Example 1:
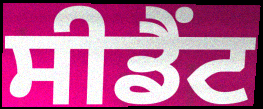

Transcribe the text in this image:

ਸੀਡੈਂਟ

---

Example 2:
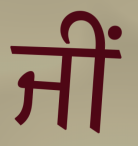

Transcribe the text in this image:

ਜੀਂ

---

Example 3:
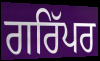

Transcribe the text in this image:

ਗਰਿੱਪਰ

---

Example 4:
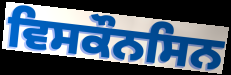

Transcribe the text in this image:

ਵਿਸਕੌਨਸਿਨ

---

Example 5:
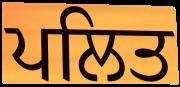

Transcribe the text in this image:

ਪਲਿਤ